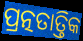
ପ୍ରତ୍ନତାତ୍ତିକ